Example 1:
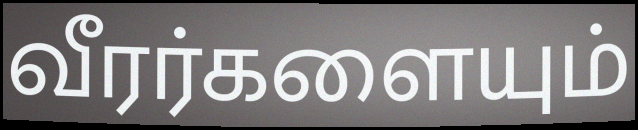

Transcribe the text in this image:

வீரர்களையும்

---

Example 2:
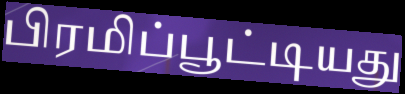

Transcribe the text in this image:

பிரமிப்பூட்டியது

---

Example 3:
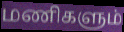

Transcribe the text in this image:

மணிகளும்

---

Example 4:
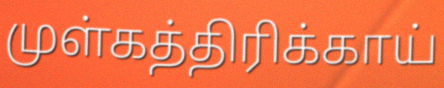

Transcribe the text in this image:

முள்கத்திரிக்காய்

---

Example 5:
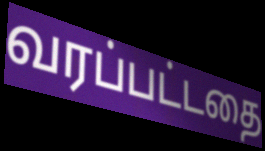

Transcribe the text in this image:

வரப்பட்டதை